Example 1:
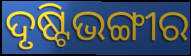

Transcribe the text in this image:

ଦୃଷ୍ଟିଭଙ୍ଗୀର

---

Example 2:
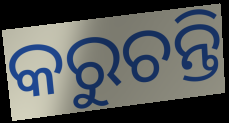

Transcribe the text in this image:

କରୁଚନ୍ତି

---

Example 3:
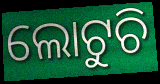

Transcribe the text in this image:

ଲୋଟୁଚି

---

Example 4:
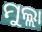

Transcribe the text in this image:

ମୁଲ୍ଲା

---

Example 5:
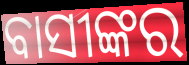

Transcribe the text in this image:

ବାସୀଙ୍କର